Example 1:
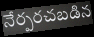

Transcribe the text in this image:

నేర్పరచబడిన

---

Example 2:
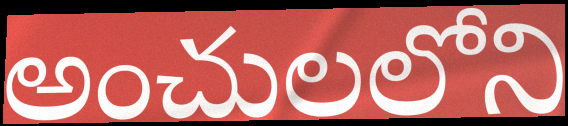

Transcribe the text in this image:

అంచులలోని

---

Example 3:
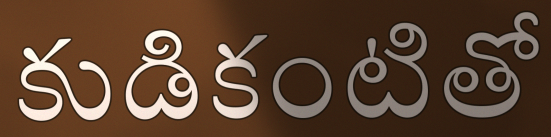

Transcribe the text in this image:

కుడికంటితో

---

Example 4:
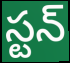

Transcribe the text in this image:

స్టన్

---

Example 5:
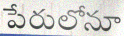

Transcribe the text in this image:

పేరులోనూ